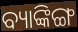
ବ୍ୟାଙ୍କିଙ୍ଗ